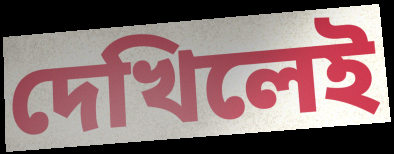
দেখিলেই